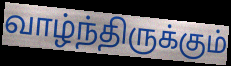
வாழ்ந்திருக்கும்